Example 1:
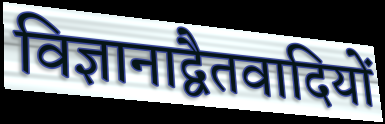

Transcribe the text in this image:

विज्ञानाद्वैतवादियों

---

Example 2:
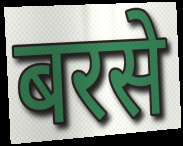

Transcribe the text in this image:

बरसे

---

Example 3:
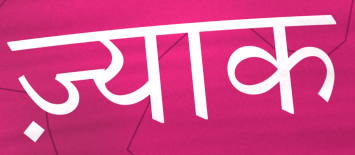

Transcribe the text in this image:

ज़्याक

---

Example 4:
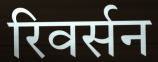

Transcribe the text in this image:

रिवर्सन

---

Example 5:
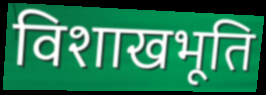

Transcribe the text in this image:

विशाखभूति